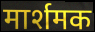
मार्शमक